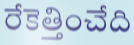
రేకెత్తించేది